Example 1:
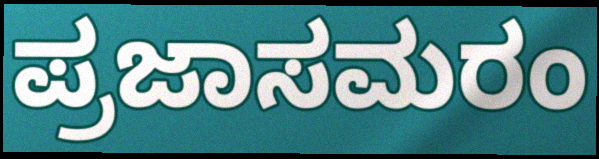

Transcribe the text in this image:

ಪ್ರಜಾಸಮರಂ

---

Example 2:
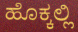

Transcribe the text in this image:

ಹೊಕ್ಕಲ್ಲಿ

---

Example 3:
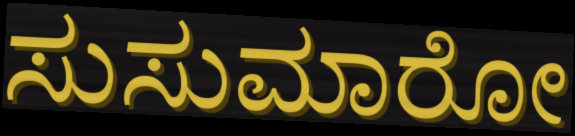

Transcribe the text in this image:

ಸುಸುಮಾರೋ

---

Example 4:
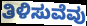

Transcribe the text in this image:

ತಿಳಿಸುವೆವು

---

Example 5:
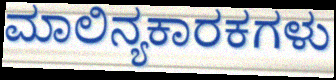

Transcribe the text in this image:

ಮಾಲಿನ್ಯಕಾರಕಗಳು